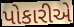
પોકારીએ